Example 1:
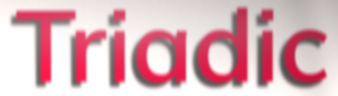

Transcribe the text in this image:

Triadic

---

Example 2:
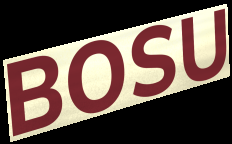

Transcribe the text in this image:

BOSU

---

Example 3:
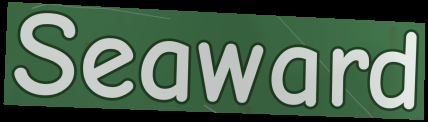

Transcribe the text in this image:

Seaward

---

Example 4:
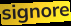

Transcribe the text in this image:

signore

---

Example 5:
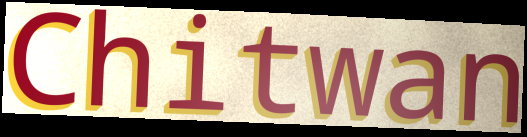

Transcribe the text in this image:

Chitwan